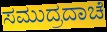
ಸಮುದ್ರದಾಚೆ